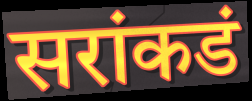
सरांकडं